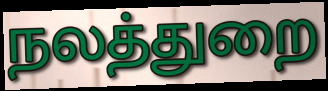
நலத்துறை